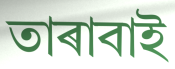
তাৰাবাই